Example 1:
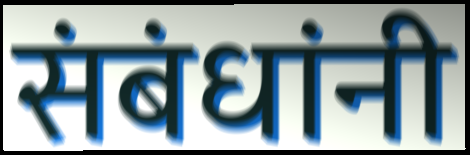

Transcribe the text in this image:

संबंधांनी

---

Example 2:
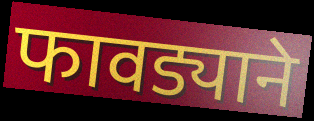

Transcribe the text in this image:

फावड्याने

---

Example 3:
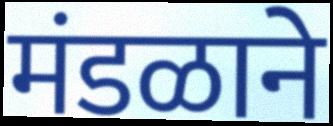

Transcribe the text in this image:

मंडळाने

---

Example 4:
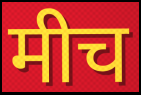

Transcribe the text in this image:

मीच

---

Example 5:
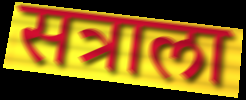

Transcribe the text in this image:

सत्राला